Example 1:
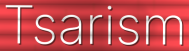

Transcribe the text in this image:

Tsarism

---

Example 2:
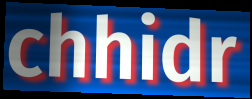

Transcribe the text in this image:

chhidr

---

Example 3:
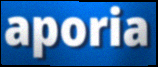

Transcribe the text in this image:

aporia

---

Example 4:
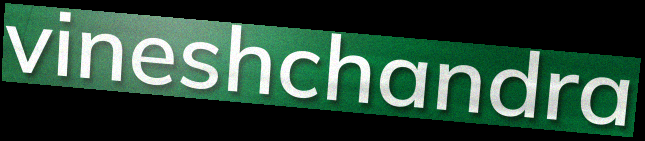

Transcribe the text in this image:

vineshchandra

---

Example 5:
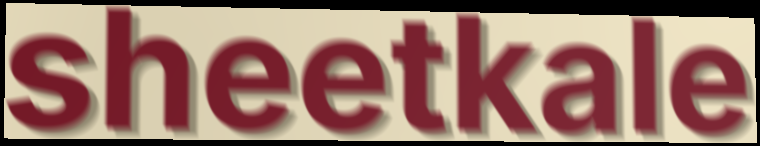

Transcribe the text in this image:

sheetkale